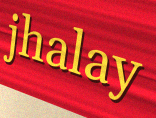
jhalay